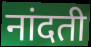
नांदती